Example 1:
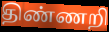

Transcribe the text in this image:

திண்ணறி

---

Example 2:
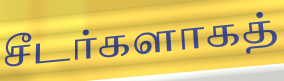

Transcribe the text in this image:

சீடர்களாகத்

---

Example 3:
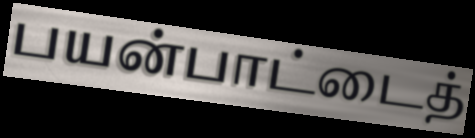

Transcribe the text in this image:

பயன்பாட்டைத்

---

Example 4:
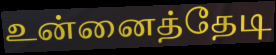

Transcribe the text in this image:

உன்னைத்தேடி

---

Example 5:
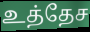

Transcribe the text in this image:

உத்தேச